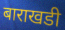
बाराखडी